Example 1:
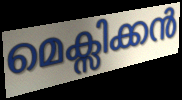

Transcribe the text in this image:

മെക്സിക്കൻ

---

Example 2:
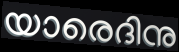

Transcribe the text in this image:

യാരെദിനു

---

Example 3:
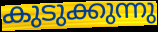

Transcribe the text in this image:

കുടുക്കുന്നു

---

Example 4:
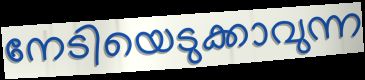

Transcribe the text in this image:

നേടിയെടുക്കാവുന്ന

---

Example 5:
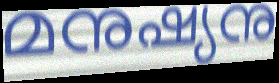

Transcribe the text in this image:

മനുഷ്യനു